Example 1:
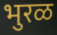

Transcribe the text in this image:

भुरळ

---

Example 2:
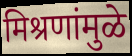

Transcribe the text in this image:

मिश्रणांमुळे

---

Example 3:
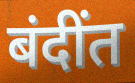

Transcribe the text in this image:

बंदींत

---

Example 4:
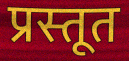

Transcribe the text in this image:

प्रस्तूत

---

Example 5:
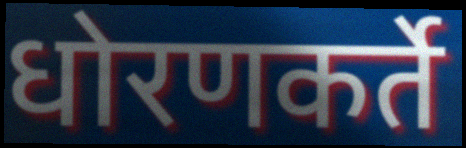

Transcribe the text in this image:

धोरणकर्ते